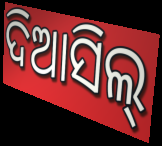
ଦିଆସିଲ୍